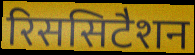
रिससिटैशन